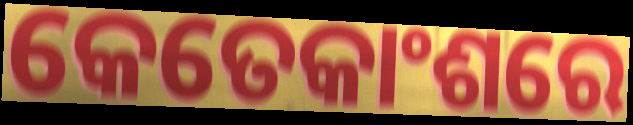
କେତେକାଂଶରେ